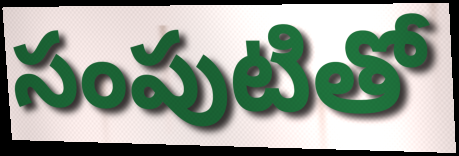
సంపుటితో